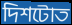
দিশটোত